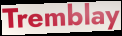
Tremblay